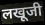
लखूजी